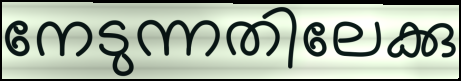
നേടുന്നതിലേക്കു